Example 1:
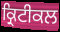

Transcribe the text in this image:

ਕ੍ਰਿਟੀਕਲ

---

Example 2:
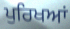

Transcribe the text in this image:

ਪੁਰਿਖਆਂ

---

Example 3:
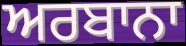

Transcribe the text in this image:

ਅਰਬਾਨਾ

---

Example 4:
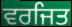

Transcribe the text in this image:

ਵਰਜਿਤ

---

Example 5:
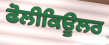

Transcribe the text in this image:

ਫੋਲੀਕਿਊਲਰ